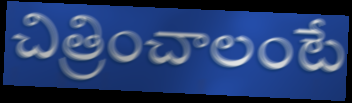
చిత్రించాలంటే